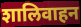
शालिवाहन